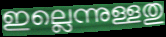
ഇല്ലെന്നുള്ളതു